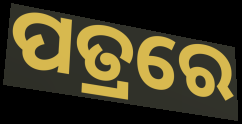
ପତ୍ରରେ